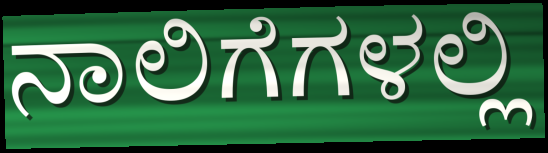
ನಾಲಿಗೆಗಳಲ್ಲಿ